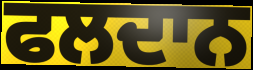
ਫਲਦਾਨ